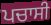
ਪਚਾਸੀ